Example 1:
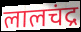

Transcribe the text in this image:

लालचंद्र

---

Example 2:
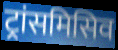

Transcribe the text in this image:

ट्रांसमिसिव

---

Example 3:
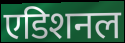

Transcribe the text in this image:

एडिशनल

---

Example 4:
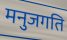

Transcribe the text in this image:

मनुजगति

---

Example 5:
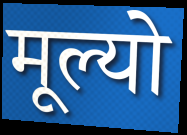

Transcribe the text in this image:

मूल्यो